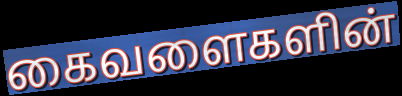
கைவளைகளின்